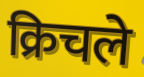
क्रिचले